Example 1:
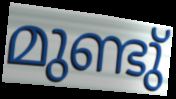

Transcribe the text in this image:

മുണ്ടു്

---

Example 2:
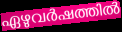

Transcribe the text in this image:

ഏഴുവർഷത്തിൽ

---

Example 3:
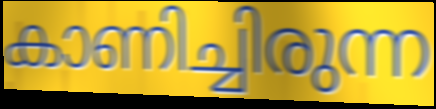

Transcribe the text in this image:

കാണിച്ചിരുന്ന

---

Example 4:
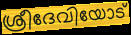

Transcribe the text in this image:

ശ്രീദേവിയോട്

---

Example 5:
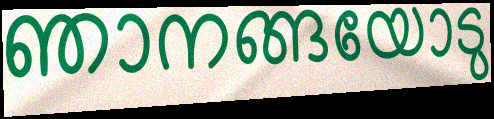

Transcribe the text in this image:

ഞാനങ്ങയോടു